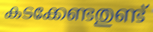
കടക്കേണ്ടതുണ്ട്